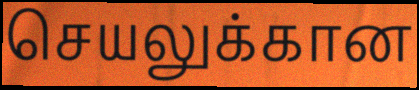
செயலுக்கான